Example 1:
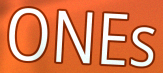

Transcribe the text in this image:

ONEs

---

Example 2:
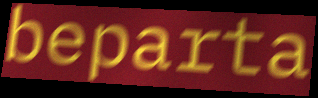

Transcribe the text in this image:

beparta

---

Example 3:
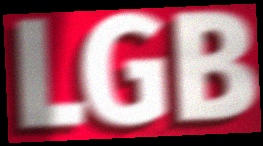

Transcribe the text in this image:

LGB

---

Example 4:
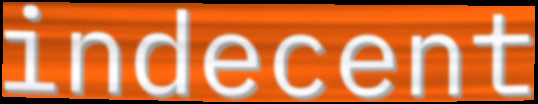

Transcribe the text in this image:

indecent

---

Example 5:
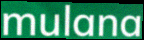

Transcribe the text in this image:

mulana